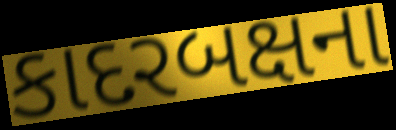
કાદરબક્ષના